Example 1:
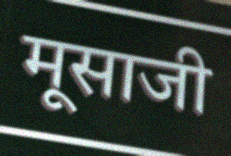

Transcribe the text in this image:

मूसाजी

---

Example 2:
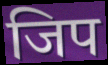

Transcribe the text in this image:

जिप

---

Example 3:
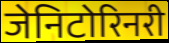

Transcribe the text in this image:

जेनिटोरिनरी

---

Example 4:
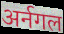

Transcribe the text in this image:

अर्नगल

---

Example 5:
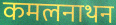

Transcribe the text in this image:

कमलनाथन